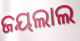
ଜୟଲାଲ